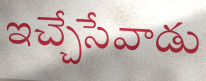
ఇచ్చేసేవాడు